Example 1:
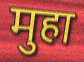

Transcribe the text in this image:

मुहा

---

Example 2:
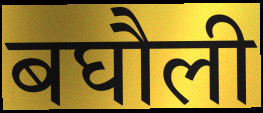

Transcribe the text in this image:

बघौली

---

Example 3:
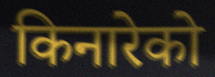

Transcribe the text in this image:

किनारेको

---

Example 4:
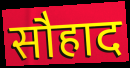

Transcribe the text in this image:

सौहाद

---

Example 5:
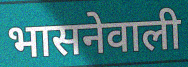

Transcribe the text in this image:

भासनेवाली